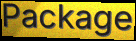
Package